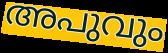
അപുവും